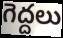
గెద్దలు